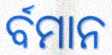
ର୍ବମାନ